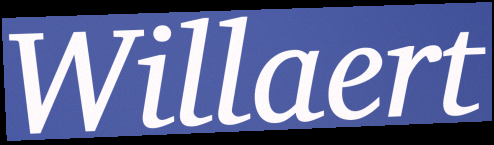
Willaert